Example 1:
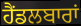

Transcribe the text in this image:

ਹੈਂਡਲਬਾਰਾਂ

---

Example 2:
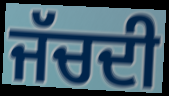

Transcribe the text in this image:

ਜੱਚਦੀ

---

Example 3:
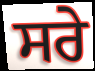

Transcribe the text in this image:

ਸਰੇ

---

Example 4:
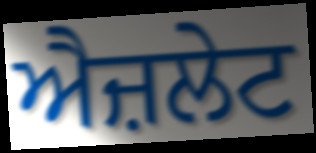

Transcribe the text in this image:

ਐਜ਼ਲੇਟ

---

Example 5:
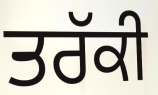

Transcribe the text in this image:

ਤਰੱਕੀ